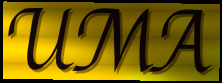
UMA